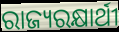
ରାଜ୍ୟରକ୍ଷାର୍ଥୀ